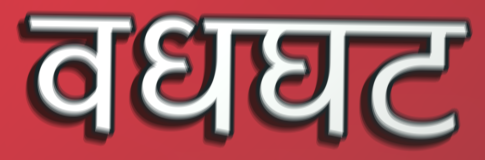
वधघट